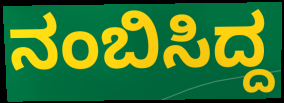
ನಂಬಿಸಿದ್ದ